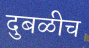
दुबळीच